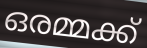
ഒരമ്മക്ക്